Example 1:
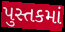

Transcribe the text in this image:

પુસ્તકમાં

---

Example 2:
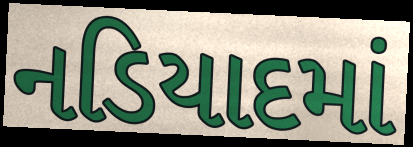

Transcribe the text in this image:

નડિયાદમાં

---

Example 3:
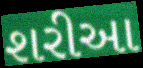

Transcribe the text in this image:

શરીઆ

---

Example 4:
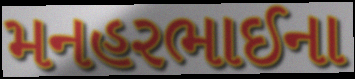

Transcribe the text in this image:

મનહરભાઈના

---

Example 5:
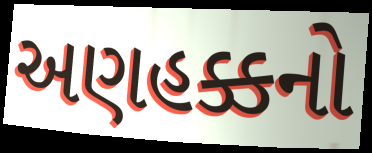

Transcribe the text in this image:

અણહક્કનો